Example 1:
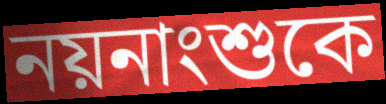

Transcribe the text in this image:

নয়নাংশুকে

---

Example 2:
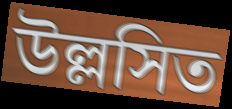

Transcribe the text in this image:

উল্লসিত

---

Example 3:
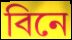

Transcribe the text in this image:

বিনে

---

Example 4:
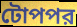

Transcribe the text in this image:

টোপপর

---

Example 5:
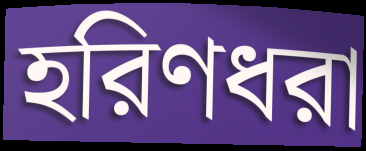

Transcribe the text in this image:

হরিণধরা